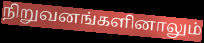
நிறுவனங்களினாலும்